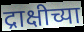
द्राक्षीच्या